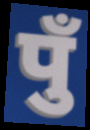
पुँ